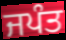
ਜਪੰਤ